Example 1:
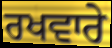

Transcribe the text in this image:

ਰਖਵਾਰੇ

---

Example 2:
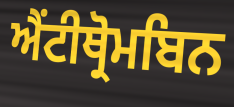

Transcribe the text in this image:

ਐਂਟੀਥ੍ਰੋਮਬਿਨ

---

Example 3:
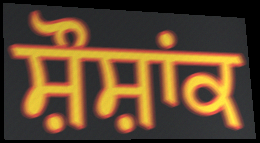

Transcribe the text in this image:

ਸ਼ੌਸ਼ਾਂਕ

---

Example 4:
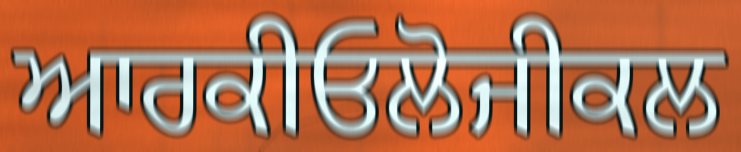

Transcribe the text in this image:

ਆਰਕੀਓਲੋਜੀਕਲ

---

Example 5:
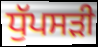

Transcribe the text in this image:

ਧੁੱਪਸੜੀ